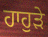
ਹਾਹੁੜੇ